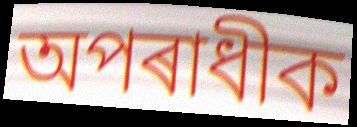
অপৰাধীক